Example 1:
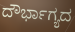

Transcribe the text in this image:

ದೌರ್ಭಾಗ್ಯದ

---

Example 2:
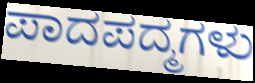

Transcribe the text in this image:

ಪಾದಪದ್ಮಗಳು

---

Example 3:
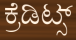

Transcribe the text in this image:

ಕ್ರೆಡಿಟ್ಸ್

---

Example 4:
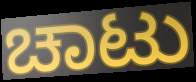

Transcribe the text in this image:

ಚಾಟು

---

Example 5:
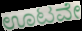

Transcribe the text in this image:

ಊಟವೇ